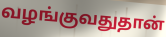
வழங்குவதுதான்